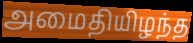
அமைதியிழந்த